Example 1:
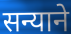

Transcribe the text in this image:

सन्याने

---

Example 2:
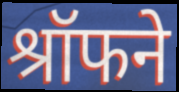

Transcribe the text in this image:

श्रॉफने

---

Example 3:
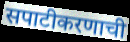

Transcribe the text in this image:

सपाटीकरणाची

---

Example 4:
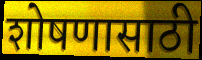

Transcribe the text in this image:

शोषणासाठी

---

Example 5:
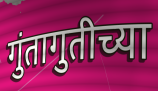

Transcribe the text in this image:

गुंतागुतीच्या